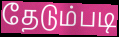
தேடும்படி